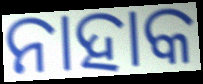
ନାହାକ